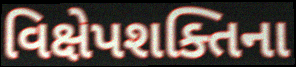
વિક્ષેપશક્તિના